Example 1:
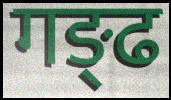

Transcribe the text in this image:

गङ्ढ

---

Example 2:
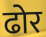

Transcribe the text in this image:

ढोर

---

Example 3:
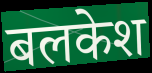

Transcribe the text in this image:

बलकेश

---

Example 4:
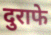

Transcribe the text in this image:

दुराफे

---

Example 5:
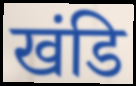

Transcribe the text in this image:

खंडि